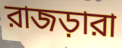
রাজড়ারা